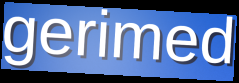
gerimed